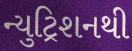
ન્યુટ્રિશનથી